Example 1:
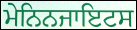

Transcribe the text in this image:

ਮੇਨਿਨਜਾਇਟਸ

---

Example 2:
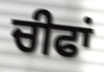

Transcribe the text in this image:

ਚੀਫਾਂ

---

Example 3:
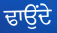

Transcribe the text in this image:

ਢਾਉਂਦੇ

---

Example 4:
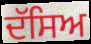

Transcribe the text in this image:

ਦੱਸਿਅ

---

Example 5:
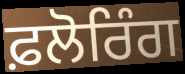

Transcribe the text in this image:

ਫ਼ਲੋਰਿੰਗ